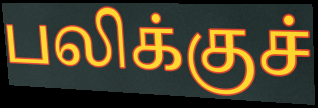
பலிக்குச்